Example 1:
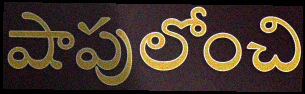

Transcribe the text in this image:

షాపులోంచి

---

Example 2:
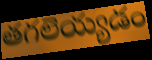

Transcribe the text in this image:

తగలెయ్యడం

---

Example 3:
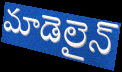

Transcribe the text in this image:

మాడెలైన్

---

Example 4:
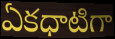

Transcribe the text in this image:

ఏకధాటిగా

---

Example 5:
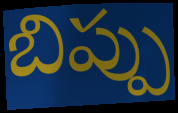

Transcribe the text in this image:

బిప్పు